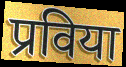
प्रविया